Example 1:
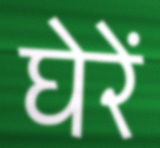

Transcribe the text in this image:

घेरें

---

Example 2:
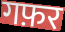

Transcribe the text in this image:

गफ़र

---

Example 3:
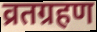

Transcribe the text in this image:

व्रतग्रहण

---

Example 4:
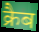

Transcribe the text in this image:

क्रैब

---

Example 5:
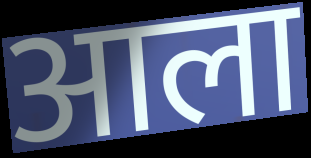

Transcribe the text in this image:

आला